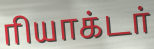
ரியாக்டர்